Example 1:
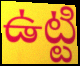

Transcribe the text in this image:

ఉట్టి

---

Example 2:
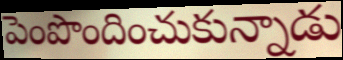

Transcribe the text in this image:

పెంపొందించుకున్నాడు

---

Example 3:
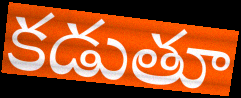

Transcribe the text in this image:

కడుతూ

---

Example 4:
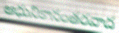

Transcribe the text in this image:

ఆధునికానంతరవాద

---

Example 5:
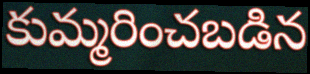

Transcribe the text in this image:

కుమ్మరించబడిన